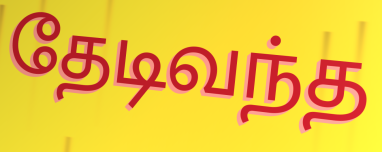
தேடிவந்த